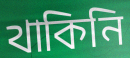
থাকিনি